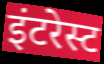
इंटरेस्ट